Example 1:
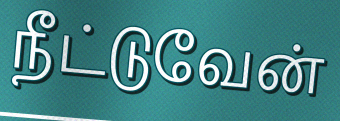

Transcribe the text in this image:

நீட்டுவேன்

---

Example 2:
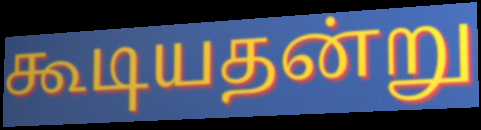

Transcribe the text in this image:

கூடியதன்று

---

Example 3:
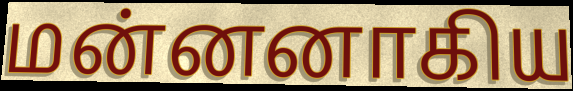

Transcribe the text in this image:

மன்னனாகிய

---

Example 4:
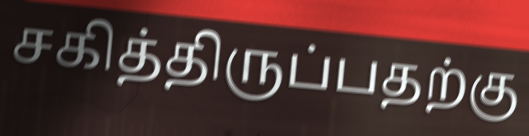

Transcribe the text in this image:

சகித்திருப்பதற்கு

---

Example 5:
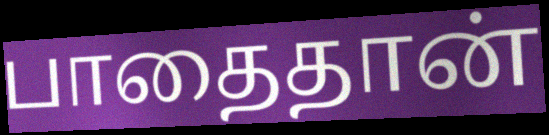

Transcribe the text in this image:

பாதைதான்